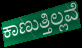
ಕಾಣುತ್ತಿಲ್ಲವೆ